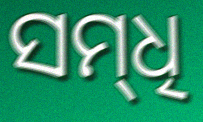
ସମ୍‌ଧି